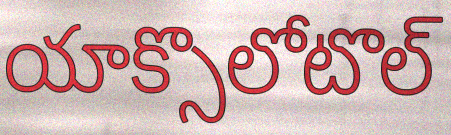
యాక్సొలోటొల్